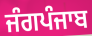
ਜੰਗਪੰਜਾਬ